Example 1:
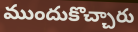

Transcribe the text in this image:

ముందుకొచ్చారు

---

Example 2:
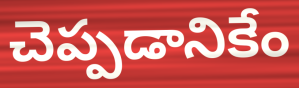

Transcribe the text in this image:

చెప్పడానికేం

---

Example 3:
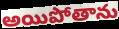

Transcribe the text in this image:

అయిపోతాను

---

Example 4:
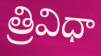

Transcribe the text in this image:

త్రివిధా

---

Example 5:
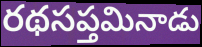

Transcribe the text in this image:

రథసప్తమినాడు